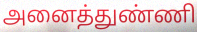
அனைத்துண்ணி